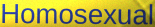
Homosexual